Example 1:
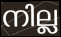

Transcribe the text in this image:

നില്ല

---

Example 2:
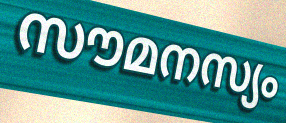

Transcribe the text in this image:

സൗമനസ്യം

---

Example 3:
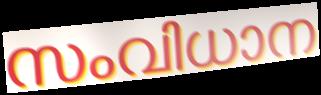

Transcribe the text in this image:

സംവിധാന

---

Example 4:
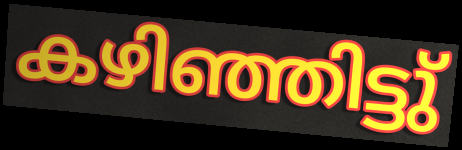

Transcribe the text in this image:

കഴിഞ്ഞിട്ടു്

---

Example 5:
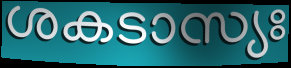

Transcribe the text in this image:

ശകടാസ്യഃ